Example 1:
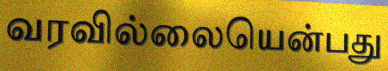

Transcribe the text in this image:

வரவில்லையென்பது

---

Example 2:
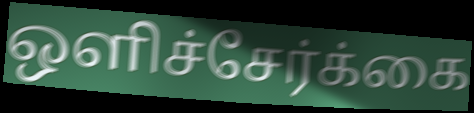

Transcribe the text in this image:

ஒளிச்சேர்க்கை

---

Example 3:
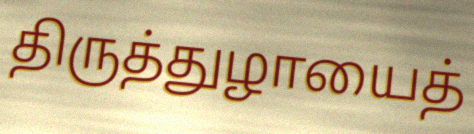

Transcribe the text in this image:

திருத்துழாயைத்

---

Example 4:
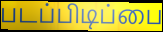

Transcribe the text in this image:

படப்பிடிப்பை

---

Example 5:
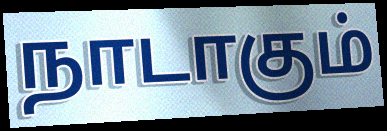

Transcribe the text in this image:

நாடாகும்